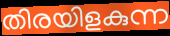
തിരയിളകുന്ന